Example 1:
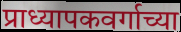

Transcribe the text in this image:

प्राध्यापकवर्गाच्या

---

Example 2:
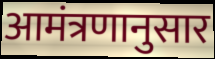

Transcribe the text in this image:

आमंत्रणानुसार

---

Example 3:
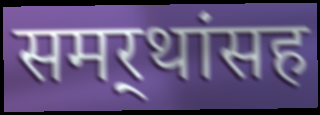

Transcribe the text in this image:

समर्थांसह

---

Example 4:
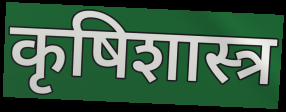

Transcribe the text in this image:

कृषिशास्त्र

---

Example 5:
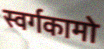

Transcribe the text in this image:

स्वर्गकामो